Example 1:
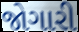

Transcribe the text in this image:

જોગારી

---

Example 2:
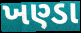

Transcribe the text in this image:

ખણ્ડા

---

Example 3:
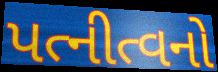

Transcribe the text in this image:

પત્નીત્વનો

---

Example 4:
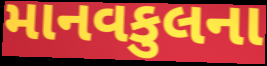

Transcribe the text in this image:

માનવકુલના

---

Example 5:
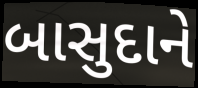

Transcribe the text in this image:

બાસુદાને